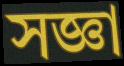
সজ্ঞা